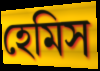
হেমিস